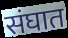
संघात